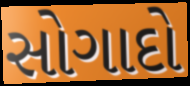
સોગાદો